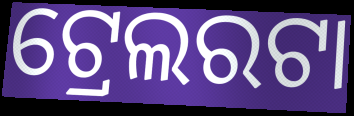
ଟ୍ରେଲରଟା